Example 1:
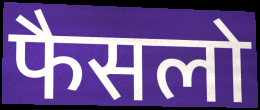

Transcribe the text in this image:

फैसलो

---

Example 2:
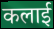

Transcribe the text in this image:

कलाई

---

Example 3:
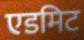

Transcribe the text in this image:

एडमिट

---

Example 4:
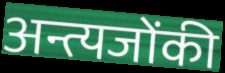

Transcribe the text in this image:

अन्त्यजोंकी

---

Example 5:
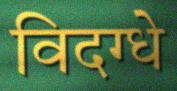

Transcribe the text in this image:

विदग्धे